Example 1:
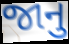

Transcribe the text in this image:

જાનુ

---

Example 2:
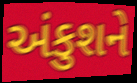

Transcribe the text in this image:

અંકુશને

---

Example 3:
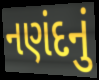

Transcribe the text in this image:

નણંદનું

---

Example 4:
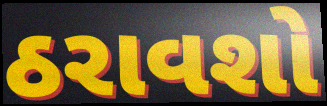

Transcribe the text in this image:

ઠરાવશો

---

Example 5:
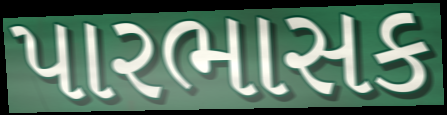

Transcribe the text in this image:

પારભાસક